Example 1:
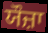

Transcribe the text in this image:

ਯੌਜ਼ਾ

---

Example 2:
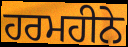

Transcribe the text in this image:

ਹਰਮਹੀਨੇ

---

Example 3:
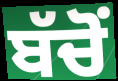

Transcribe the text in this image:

ਬੱਚੋਂ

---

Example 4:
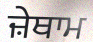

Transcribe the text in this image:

ਜ਼ੇਥਾਮ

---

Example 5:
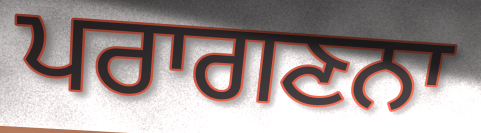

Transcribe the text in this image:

ਪਰਾਗਣਨਾ